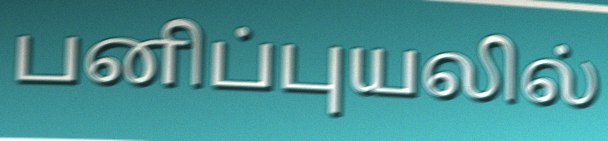
பனிப்புயலில்